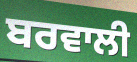
ਬਰਵਾਲੀ